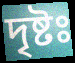
দৃষ্টঃ